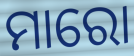
ମାରୋ